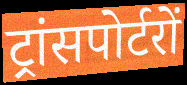
ट्रांसपोर्टरों